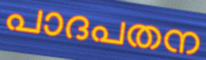
പാദപതന